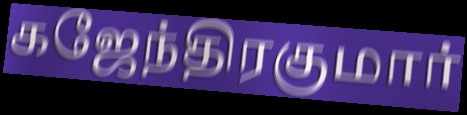
கஜேந்திரகுமார்